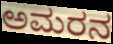
ಅಮರನ